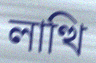
লাত্থি